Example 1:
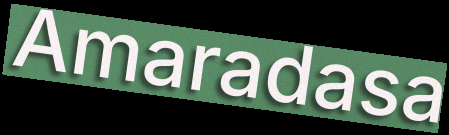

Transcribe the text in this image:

Amaradasa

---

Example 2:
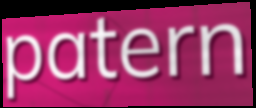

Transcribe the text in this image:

patern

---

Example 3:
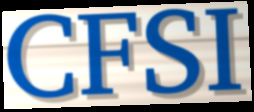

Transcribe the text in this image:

CFSI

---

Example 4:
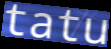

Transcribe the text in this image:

tatu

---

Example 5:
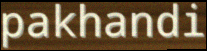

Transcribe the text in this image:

pakhandi